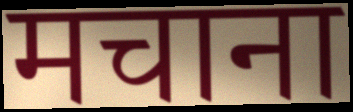
मचाना